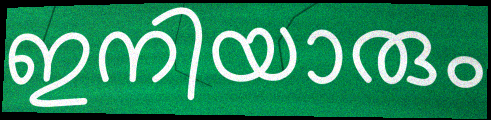
ഇനിയാരും